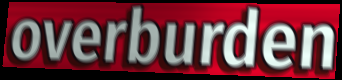
overburden